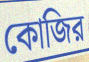
কোজির